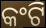
କଂଟି